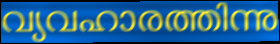
വ്യവഹാരത്തിന്നു